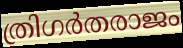
ത്രിഗർതരാജം